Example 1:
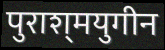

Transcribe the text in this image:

पुराश्मयुगीन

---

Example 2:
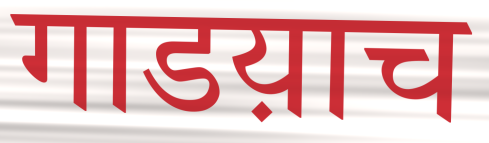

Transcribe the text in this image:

गाडय़ाच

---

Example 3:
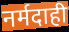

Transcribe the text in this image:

नर्मदाही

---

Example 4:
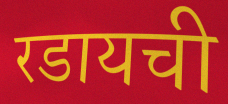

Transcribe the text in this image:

रडायची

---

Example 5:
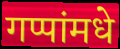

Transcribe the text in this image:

गप्पांमधे